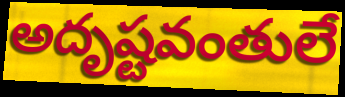
అదృష్టవంతులే